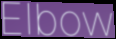
Elbow